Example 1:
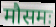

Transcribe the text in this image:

मौसमः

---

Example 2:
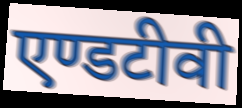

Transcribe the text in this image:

एण्डटीवी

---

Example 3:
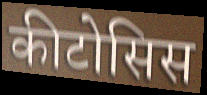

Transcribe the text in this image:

कीटोसिस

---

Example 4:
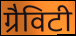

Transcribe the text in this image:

ग्रैविटी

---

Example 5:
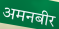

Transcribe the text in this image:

अमनबीर